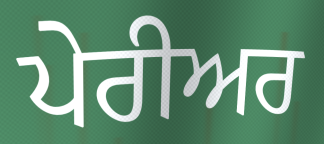
ਪੇਰੀਅਰ